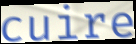
cuire